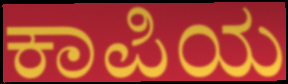
ಕಾಪಿಯ